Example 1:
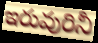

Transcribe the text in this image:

ఇరువురినీ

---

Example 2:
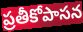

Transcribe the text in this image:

ప్రతీకోపాసన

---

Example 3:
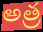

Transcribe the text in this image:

అత్ర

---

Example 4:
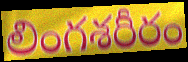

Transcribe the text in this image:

లింగశరీరం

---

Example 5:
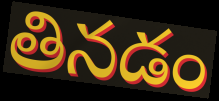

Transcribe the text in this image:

తినడం